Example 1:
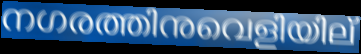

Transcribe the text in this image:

നഗരത്തിനുവെളിയില്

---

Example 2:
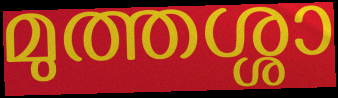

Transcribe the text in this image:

മുത്തശ്ശാ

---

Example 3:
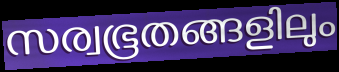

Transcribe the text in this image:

സര്വഭൂതങ്ങളിലും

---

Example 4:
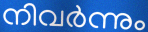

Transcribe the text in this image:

നിവർന്നും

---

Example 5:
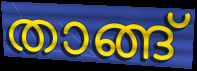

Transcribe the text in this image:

താങ്ങ്